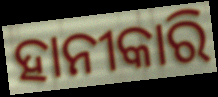
ହାନୀକାରି